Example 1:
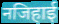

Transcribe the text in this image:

नजिहाई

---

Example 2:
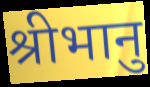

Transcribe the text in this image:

श्रीभानु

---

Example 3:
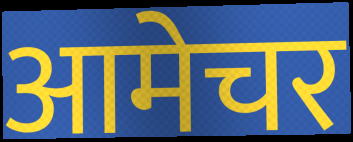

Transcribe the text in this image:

आमेचर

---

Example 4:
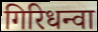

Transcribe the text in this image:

गिरिधन्वा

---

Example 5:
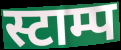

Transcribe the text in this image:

स्टाम्प